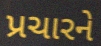
પ્રચારને